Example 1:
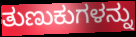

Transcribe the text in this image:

ತುಣುಕುಗಳನ್ನು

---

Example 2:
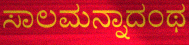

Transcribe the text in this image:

ಸಾಲಮನ್ನಾದಂಥ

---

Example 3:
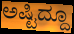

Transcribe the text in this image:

ಅಷ್ಟಿದ್ದೂ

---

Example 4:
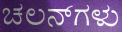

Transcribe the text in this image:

ಚಲನ್‌ಗಳು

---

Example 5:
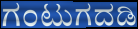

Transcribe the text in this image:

ಗಂಟುಗದಡಿ